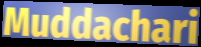
Muddachari